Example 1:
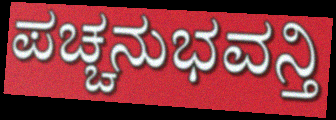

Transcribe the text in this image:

ಪಚ್ಚನುಭವನ್ತಿ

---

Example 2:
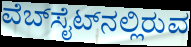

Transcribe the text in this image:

ವೆಬ್‌ಸೈಟ್‌ನಲ್ಲಿರುವ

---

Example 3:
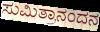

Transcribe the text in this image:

ಸುಮಿತ್ರಾನಂದನ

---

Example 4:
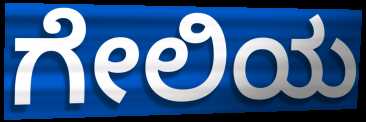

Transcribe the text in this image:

ಗೇಲಿಯ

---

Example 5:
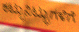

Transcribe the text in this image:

ಕಟ್ಟುನಿಟ್ಟುಗಳಿಗೆ